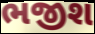
ભજીશ